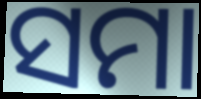
ସମା